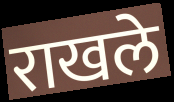
राखले